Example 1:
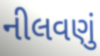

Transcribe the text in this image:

નીલવણું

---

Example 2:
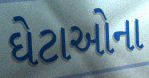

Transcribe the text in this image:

ઘેટાઓના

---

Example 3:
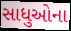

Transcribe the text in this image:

સાધુઓના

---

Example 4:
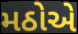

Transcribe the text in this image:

મઠોએ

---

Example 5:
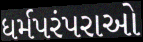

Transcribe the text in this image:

ધર્મપરંપરાઓ